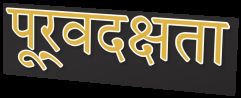
पूर्वदक्षता